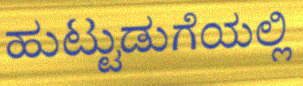
ಹುಟ್ಟುಡುಗೆಯಲ್ಲಿ